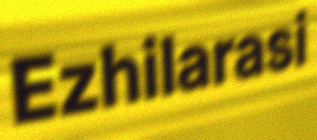
Ezhilarasi